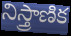
నిస్త్రాణిక